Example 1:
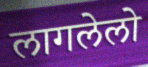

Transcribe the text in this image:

लागलेलो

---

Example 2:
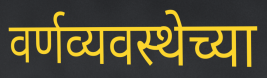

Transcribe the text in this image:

वर्णव्यवस्थेच्या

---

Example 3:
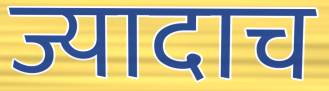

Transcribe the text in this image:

ज्यादाच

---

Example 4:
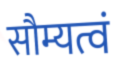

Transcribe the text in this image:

सौम्यत्वं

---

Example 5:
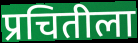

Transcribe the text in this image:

प्रचितीला